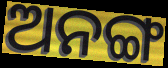
ଅନଙ୍ଗ